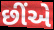
છીંએ